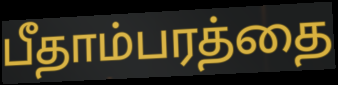
பீதாம்பரத்தை